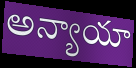
అన్యాయా